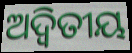
ଅଦ୍ଵିତୀୟ